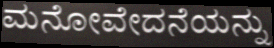
ಮನೋವೇದನೆಯನ್ನು